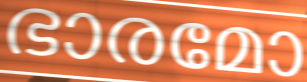
ഭാരമോ